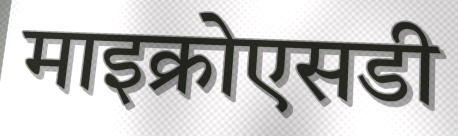
माइक्रोएसडी